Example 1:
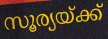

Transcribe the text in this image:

സൂര്യയ്ക്ക്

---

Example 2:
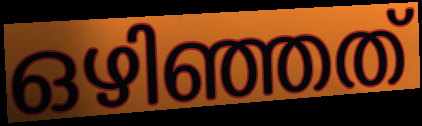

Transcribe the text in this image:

ഒഴിഞ്ഞത്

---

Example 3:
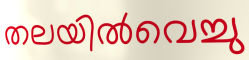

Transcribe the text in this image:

തലയിൽവെച്ചു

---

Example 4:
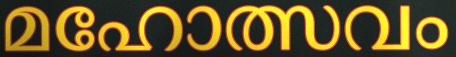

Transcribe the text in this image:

മഹോത്സവം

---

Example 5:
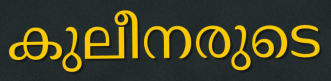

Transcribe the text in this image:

കുലീനരുടെ